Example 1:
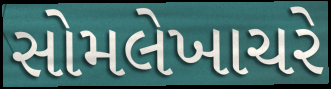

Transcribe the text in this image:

સોમલેખાચરે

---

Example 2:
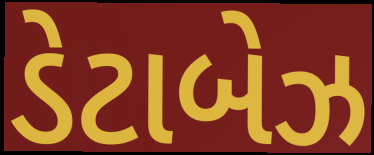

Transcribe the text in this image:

ડેટાબેઝ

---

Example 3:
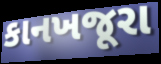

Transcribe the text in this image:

કાનખજૂરા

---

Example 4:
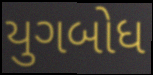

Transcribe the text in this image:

યુગબોધ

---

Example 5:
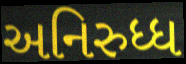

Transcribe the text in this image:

અનિરુધ્ધ